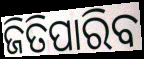
ଜିତିପାରିବ